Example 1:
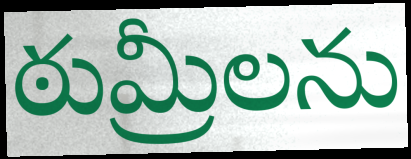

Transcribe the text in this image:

ఠుమ్రీలను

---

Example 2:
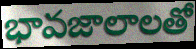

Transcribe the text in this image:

భావజాలాలతో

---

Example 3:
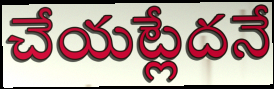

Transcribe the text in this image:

చేయట్లేదనే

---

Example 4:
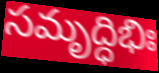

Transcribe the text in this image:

సమృద్ధిభిః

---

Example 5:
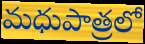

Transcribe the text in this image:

మధుపాత్రలో